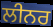
ਲੀਨਰ